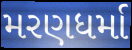
મરણધર્મા